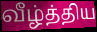
வீழ்த்திய